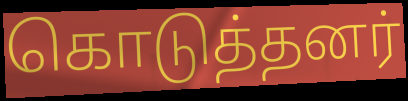
கொடுத்தனர்